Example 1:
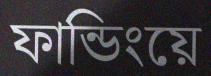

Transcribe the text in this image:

ফান্ডিংয়ে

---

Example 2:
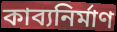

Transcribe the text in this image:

কাব্যনির্মাণ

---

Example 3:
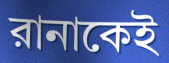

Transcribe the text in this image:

রানাকেই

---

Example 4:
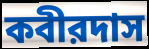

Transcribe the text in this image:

কবীরদাস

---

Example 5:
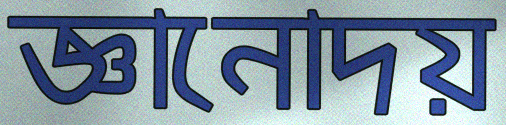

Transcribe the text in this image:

জ্ঞানোদয়